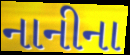
નાનીના